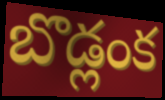
బొడ్లంక